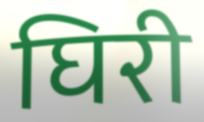
घिरी